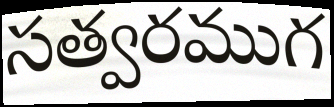
సత్వరముగ